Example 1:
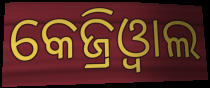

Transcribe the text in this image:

କେଜ୍ରିଓ୍ଵାଲ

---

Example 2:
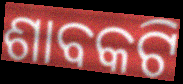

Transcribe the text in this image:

ଶାବକଟି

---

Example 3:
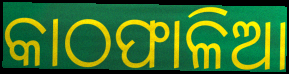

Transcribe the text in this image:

କାଠଫାଳିଆ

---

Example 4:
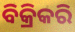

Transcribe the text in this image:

ବିକ୍ରିକରି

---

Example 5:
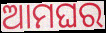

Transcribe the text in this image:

ଆମଘର